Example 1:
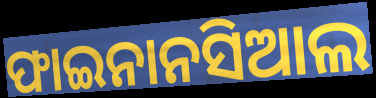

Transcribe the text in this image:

ଫାଇନାନସିଆଲ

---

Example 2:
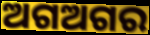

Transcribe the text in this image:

ଅଗଅଗର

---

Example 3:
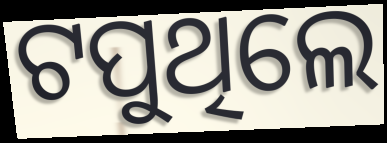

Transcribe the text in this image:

ଟପୁଥିଲେ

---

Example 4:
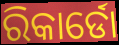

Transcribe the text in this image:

ରିକାର୍ଡୋ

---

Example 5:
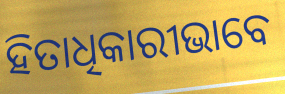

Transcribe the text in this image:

ହିତାଧିକାରୀଭାବେ